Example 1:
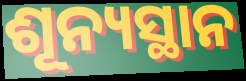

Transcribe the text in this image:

ଶୂନ୍ୟସ୍ଥାନ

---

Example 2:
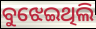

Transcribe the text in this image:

ବୁଝେଇଥିଲି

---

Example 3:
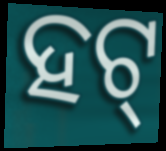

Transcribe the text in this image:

ହଟ୍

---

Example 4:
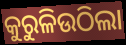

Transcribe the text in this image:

କୁରୁଳିଉଠିଲା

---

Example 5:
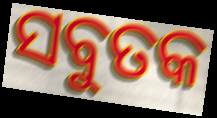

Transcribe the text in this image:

ସବୁତକ